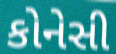
કોનેસી